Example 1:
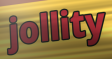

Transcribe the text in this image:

jollity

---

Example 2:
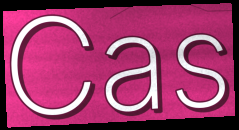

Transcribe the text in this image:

Cas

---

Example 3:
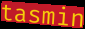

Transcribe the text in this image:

tasmin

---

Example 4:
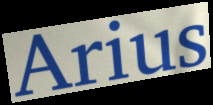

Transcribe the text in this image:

Arius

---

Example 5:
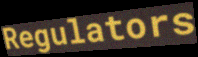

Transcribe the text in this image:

Regulators